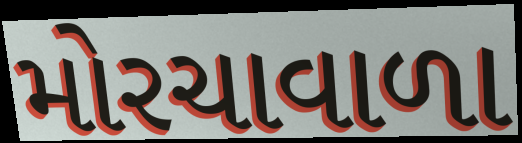
મોરચાવાળા